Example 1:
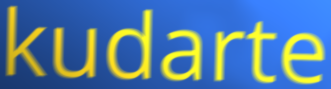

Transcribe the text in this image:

kudarte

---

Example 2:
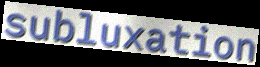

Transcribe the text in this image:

subluxation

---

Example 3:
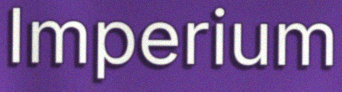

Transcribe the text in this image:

Imperium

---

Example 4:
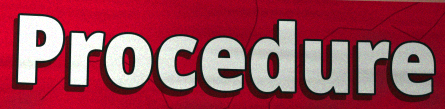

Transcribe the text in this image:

Procedure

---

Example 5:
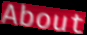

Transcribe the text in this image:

About